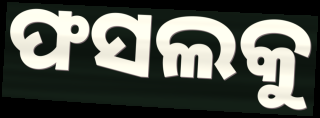
ଫସଲକୁ